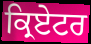
ਕ੍ਰਿਏਟਰ